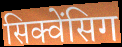
सिक्वेंसिग